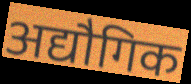
अद्यौगिक